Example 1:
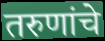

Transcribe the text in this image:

तरुणांचे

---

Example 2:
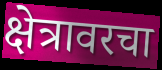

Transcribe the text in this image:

क्षेत्रावरचा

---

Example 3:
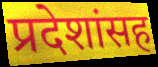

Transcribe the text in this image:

प्रदेशांसह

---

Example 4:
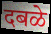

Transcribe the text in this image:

दबळे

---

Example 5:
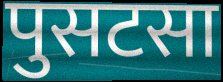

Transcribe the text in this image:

पुसटसा